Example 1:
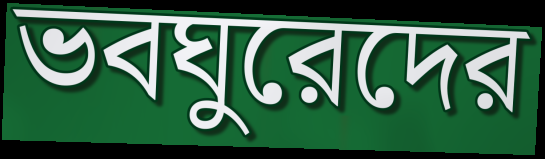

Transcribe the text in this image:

ভবঘুরেদের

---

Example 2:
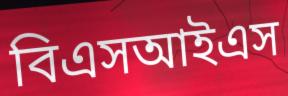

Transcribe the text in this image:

বিএসআইএস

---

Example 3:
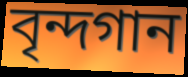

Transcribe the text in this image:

বৃন্দগান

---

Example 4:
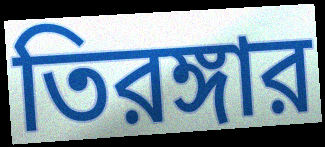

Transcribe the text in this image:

তিরঙ্গার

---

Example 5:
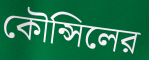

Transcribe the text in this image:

কৌন্সিলের